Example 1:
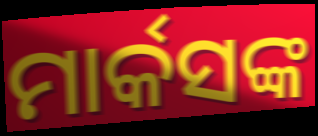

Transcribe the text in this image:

ମାର୍କସଙ୍କ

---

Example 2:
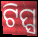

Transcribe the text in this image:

ଟିପ୍ସ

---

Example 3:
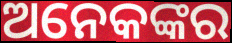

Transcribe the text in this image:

ଅନେକଙ୍କର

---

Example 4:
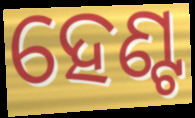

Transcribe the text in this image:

ହେଣ୍ଟ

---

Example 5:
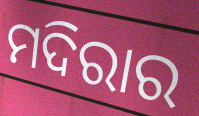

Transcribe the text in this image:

ମଦିରାର